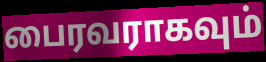
பைரவராகவும்